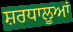
ਸ਼ਰਧਾਲੂਆਂ